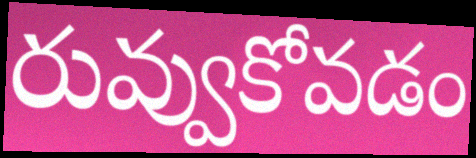
రువ్వుకోవడం